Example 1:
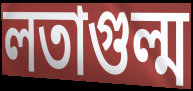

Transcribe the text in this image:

লতাগুল্ম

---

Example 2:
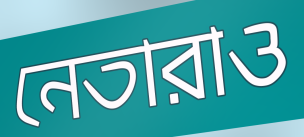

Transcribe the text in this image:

নেতারাও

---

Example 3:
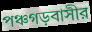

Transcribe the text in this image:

পঞ্চগড়বাসীর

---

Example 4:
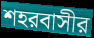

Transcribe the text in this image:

শহরবাসীর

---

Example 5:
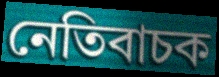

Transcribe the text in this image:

নেতিবাচক